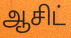
ஆசிட்